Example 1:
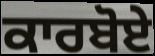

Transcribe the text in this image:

ਕਾਰਬੋਏ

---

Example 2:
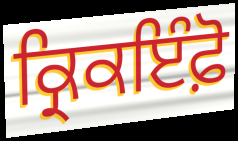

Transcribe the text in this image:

ਕ੍ਰਿਕਇੰਫ਼ੋ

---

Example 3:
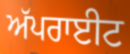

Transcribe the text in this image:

ਅੱਪਰਾਈਟ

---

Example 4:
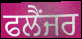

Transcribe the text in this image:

ਫਲੈਂਜਰ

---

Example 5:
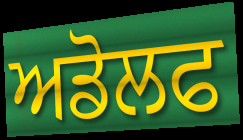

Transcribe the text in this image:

ਅਡੋਲਫ